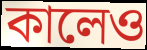
কালেও